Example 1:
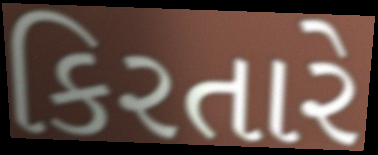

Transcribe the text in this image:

કિરતારે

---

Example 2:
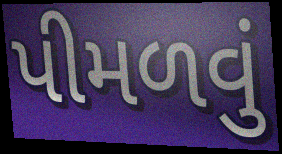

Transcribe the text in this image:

પીમળવું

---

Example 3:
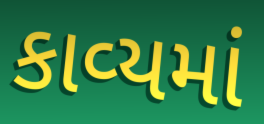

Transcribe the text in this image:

કાવ્‍યમાં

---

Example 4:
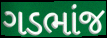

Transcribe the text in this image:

ગડભાંજ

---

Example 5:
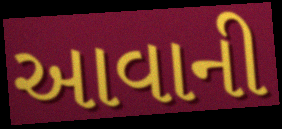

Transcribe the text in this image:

આવાની